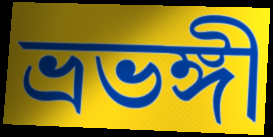
ভ্রভঙ্গী